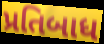
પ્રતિબાધ